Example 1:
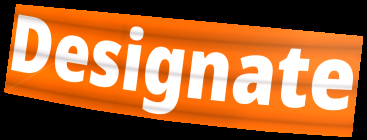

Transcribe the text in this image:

Designate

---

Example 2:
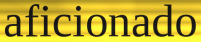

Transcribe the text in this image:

aficionado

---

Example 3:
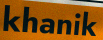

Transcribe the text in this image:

khanik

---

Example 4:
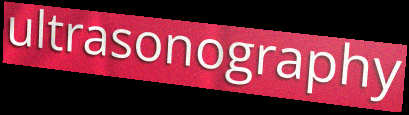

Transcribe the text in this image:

ultrasonography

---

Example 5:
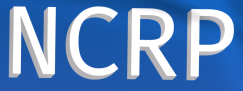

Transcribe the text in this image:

NCRP